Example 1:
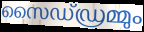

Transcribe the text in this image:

സൈഡ്ഡ്രമ്മും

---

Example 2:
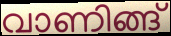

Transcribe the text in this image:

വാണിങ്ങ്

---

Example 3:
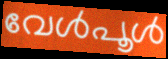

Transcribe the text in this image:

വേൾപൂൾ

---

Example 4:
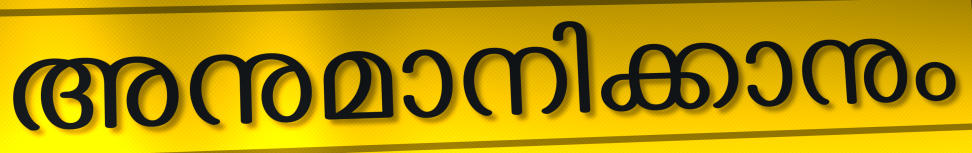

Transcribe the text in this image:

അനുമാനിക്കാനും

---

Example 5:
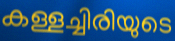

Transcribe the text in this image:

കള്ളച്ചിരിയുടെ